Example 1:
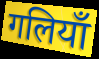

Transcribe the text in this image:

गलियाँ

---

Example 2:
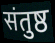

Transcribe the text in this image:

संतुष्ठ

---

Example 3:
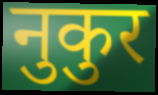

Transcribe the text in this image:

नुकुर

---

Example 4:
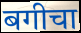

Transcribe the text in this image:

बगीचा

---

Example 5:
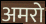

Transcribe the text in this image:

अमरो